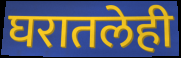
घरातलेही